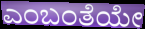
ಎಂಬಂತೆಯೇ